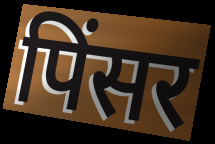
पिंसर